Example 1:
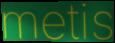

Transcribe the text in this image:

metis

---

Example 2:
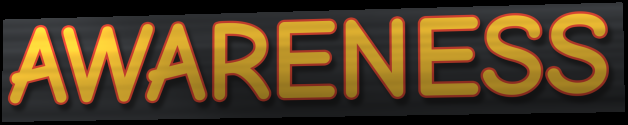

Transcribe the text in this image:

AWARENESS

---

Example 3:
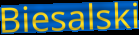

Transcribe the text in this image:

Biesalski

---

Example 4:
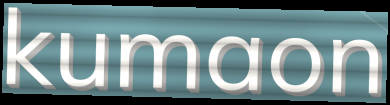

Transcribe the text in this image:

kumaon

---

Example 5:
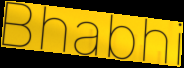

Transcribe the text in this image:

Bhabhi